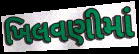
ખિલવણીમાં